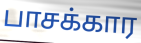
பாசக்கார